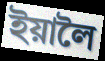
ইয়ালৈ